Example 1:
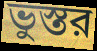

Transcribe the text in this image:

ভুস্তর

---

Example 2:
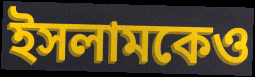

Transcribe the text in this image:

ইসলামকেও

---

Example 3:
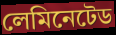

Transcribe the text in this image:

লেমিনেটেড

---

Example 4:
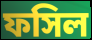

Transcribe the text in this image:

ফসিল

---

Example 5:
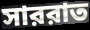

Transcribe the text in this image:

সাররাত